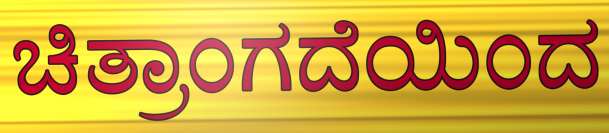
ಚಿತ್ರಾಂಗದೆಯಿಂದ